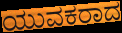
ಯುವಕರಾದ